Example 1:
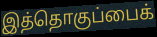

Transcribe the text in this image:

இத்தொகுப்பைக்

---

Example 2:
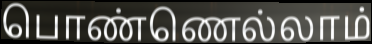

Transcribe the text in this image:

பொண்ணெல்லாம்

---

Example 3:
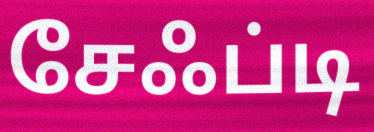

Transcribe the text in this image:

சேஃப்டி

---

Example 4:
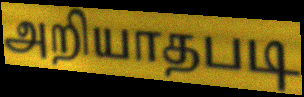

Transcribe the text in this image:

அறியாதபடி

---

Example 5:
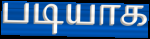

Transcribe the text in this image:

படியாக